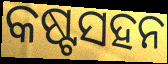
କଷ୍ଟସହନ